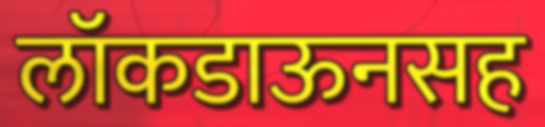
लॉकडाऊनसह